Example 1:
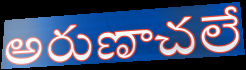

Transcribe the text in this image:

అరుణాచలే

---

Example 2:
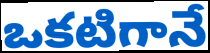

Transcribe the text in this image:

ఒకటిగానే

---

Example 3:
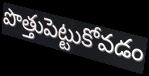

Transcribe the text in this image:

పొత్తుపెట్టుకోవడం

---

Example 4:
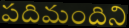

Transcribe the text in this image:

పదిమందిని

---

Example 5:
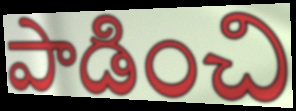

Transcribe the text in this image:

పాడించి